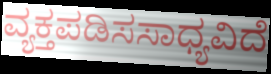
ವ್ಯಕ್ತಪಡಿಸಸಾಧ್ಯವಿದೆ